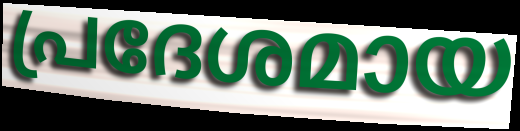
പ്രദേശമായ